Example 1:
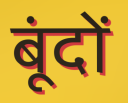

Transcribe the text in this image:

बूंदों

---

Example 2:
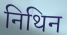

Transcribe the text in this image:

निथिन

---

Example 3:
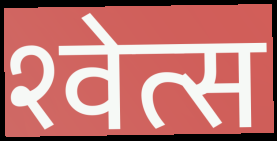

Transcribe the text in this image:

श्वेत्स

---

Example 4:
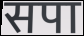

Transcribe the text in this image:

सपा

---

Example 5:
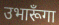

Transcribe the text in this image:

उभारूँगा